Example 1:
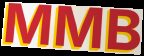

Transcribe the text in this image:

MMB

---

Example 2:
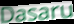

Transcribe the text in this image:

Dasaru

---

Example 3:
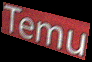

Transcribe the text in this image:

Temu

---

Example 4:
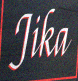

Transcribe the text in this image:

Jika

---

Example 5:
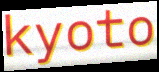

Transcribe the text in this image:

kyoto